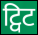
ट्विट